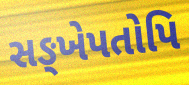
સઙ્ખેપતોપિ